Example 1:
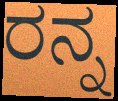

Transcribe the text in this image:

ರನ್ನ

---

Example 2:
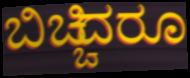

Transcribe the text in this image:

ಬಿಚ್ಚಿದರೂ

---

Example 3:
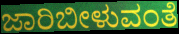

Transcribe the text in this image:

ಜಾರಿಬೀಳುವಂತೆ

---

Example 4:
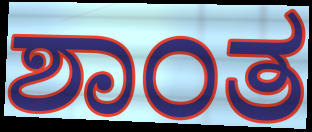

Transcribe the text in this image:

ಶಾಂತ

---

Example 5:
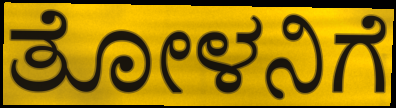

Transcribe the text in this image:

ತೋಳನಿಗೆ